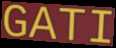
GATI